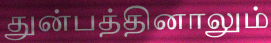
துன்பத்தினாலும்